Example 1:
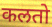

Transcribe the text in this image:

कलतो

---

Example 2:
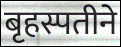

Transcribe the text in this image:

बृहस्पतीने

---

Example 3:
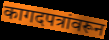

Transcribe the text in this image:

कागदपत्रांवरून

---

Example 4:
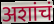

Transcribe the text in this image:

अशांचं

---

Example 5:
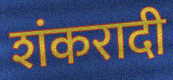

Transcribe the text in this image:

शंकरादी